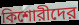
কিশোরীদের